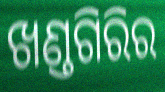
ଖଣ୍ଡଗିରିର